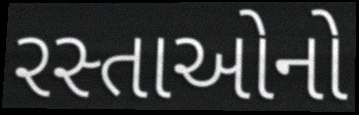
રસ્તાઓનો